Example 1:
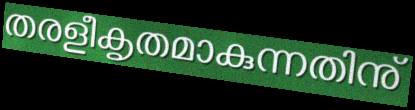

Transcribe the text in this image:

തരളീകൃതമാകുന്നതിനു്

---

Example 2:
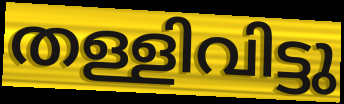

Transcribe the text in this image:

തള്ളിവിട്ടു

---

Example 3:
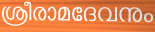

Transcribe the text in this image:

ശ്രീരാമദേവനും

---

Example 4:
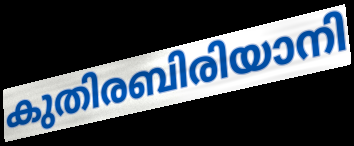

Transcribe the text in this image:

കുതിരബിരിയാനി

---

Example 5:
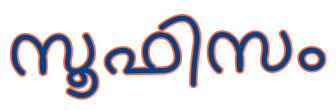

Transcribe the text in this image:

സൂഫിസം